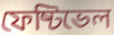
ফেষ্টিভেল